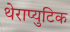
थेराप्युटिक